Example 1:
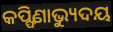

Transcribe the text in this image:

କପ୍ଫିଣାଭ୍ୟୁଦୟ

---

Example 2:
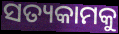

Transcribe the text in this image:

ସତ୍ୟକାମକୁ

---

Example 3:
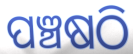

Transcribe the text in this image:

ପଞ୍ଚଷଠି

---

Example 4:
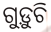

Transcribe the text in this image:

ଗୁଡ଼ୁଚି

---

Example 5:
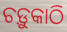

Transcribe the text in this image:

ଚଡ଼ୁକାଠି